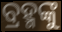
ବ୍ରହ୍ମଙ୍କୁ